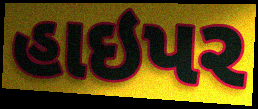
હાઇપર